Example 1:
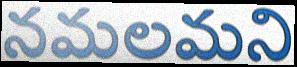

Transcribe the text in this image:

నమలమని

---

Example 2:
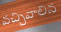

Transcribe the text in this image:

వచ్చివాలిన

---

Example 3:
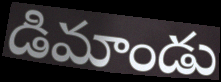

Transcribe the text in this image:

డిమాండు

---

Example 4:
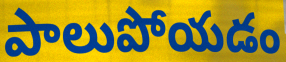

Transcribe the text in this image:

పాలుపోయడం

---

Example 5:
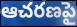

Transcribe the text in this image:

ఆచరణపై